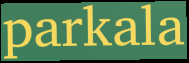
parkala